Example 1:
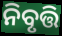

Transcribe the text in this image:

ନିବୃତ୍ତି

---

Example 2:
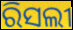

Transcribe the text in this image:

ରିସଲୀ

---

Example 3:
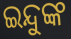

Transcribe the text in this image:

ଇନ୍ଦୁଙ୍କ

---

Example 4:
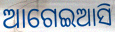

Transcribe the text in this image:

ଆଗେଇଆସି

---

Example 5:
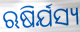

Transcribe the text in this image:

ଋଷିର୍ଯସ୍ୟ